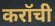
करॉची